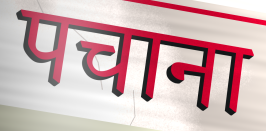
पचाना